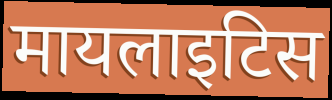
मायलाइटिस